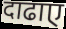
दाढाए